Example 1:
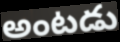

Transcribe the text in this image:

అంటడు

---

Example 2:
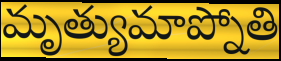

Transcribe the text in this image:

మృత్యుమాప్నోతి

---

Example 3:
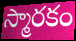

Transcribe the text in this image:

స్మారకం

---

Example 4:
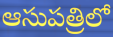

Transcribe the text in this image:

ఆసుపత్రిలో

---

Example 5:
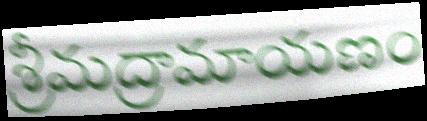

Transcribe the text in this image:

శ్రీమద్రామాయణం